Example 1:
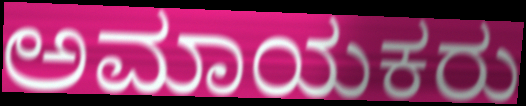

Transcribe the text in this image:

ಅಮಾಯಕರು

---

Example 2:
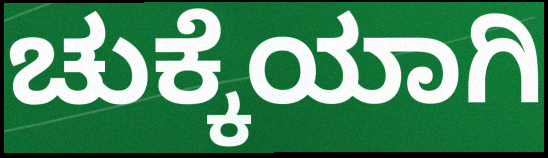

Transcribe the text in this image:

ಚುಕ್ಕೆಯಾಗಿ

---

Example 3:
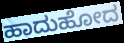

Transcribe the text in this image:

ಹಾದುಹೋದ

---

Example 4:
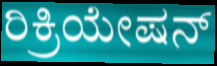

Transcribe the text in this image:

ರಿಕ್ರಿಯೇಷನ್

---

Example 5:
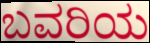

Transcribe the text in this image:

ಬವರಿಯ